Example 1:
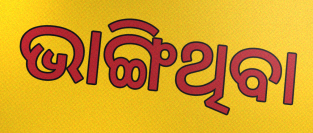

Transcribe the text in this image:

ଭାଙ୍ଗିଥିବା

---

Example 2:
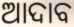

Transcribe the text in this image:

ଆଦାବ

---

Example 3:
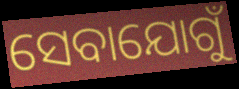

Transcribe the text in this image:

ସେବାଯୋଗୁଁ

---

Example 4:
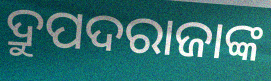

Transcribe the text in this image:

ଦ୍ରୁପଦରାଜାଙ୍କ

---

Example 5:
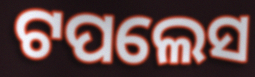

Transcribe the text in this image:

ଟପଲେସ